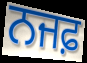
ਨਜਫ਼